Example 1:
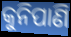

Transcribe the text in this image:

କୁନିପାଣି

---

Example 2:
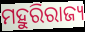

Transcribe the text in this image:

ମହୁରିରାଜ୍ୟ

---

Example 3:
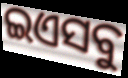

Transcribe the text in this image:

ଇଏସବୁ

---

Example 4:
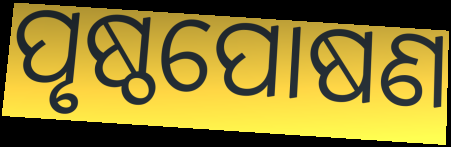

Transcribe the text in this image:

ପୃଷ୍ଠପୋଷଣ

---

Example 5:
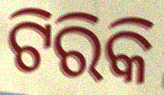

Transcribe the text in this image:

ଟିରିକି